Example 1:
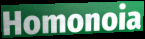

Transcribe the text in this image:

Homonoia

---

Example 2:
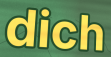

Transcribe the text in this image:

dich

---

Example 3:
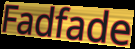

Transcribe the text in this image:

Fadfade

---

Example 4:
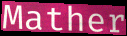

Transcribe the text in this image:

Mather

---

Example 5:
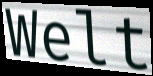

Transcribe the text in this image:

Welt